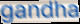
gandha